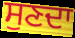
ਸੁਣਦਾ